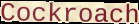
Cockroach